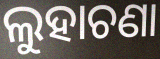
ଲୁହାଚଣା